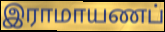
இராமாயணப்